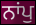
ਨਾਂਪੁ